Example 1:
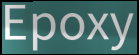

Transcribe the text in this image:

Epoxy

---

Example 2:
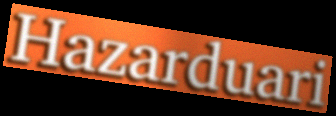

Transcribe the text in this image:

Hazarduari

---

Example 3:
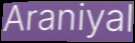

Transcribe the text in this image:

Araniyal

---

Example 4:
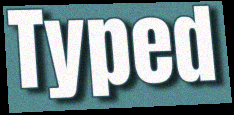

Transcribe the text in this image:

Typed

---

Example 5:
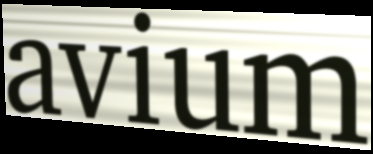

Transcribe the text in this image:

avium